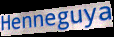
Henneguya